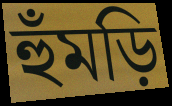
হুঁমড়ি